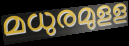
മധുരമുളള